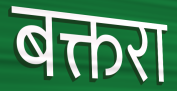
बक्तरा